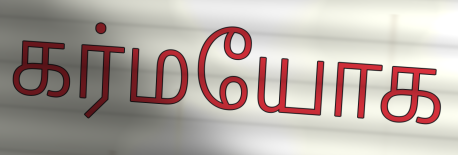
கர்மயோக